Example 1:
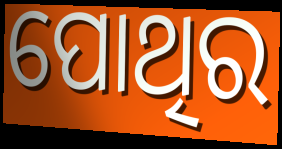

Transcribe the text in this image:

ପୋଥିର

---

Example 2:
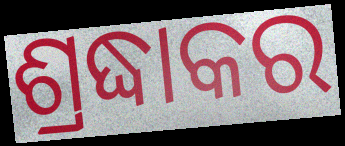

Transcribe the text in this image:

ଶ୍ରଦ୍ଧାକର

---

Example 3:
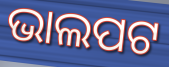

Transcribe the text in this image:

ଭାଲପଟ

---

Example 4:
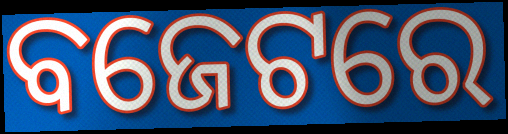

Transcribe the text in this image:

ବଜେଟରେ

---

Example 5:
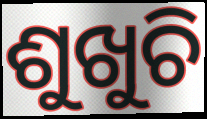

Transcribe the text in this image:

ଶୁଖୁଚି